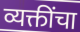
व्यक्तींचा